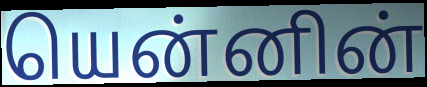
யென்னின்